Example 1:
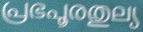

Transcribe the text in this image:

പ്രഭപൂരതുല്യ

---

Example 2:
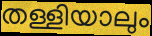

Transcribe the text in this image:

തള്ളിയാലും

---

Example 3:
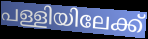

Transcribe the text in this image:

പള്ളിയിലേക്ക്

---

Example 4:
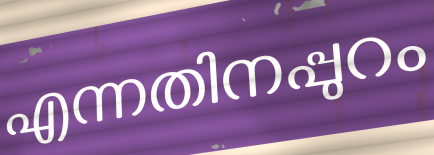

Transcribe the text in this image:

എന്നതിനപ്പുറം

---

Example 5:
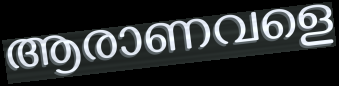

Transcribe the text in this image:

ആരാണവളെ